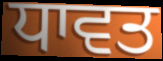
ਧਾਵਤ